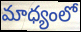
మాధ్యంలో